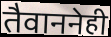
तैवाननेही